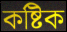
কষ্টিক